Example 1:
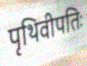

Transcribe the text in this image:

पृथिवीपतिः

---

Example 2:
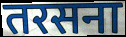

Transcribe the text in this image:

तरसना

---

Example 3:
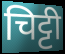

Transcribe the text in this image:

चिट्टी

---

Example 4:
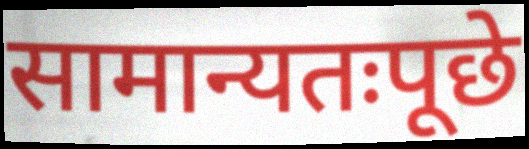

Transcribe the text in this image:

सामान्यतःपूछे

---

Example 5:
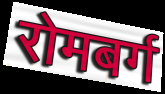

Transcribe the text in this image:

रोमबर्ग